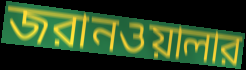
জরানওয়ালার